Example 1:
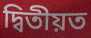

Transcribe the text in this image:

দ্বিতীয়ত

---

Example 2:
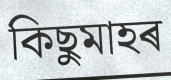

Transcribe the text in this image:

কিছুমাহৰ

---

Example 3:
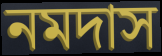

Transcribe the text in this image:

নমদাস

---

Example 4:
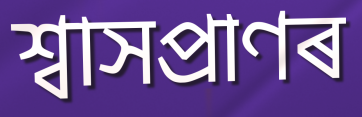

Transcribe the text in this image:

শ্বাসপ্ৰাণৰ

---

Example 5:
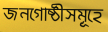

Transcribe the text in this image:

জনগোষ্ঠীসমূহে